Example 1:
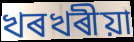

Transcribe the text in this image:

খৰখৰীয়া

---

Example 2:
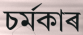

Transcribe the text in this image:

চৰ্মকাৰ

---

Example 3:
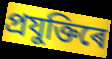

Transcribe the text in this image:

প্ৰযুক্তিৰে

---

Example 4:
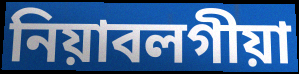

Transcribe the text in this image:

নিয়াবলগীয়া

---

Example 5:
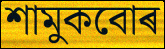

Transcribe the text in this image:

শামুকবোৰ